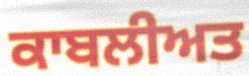
ਕਾਬਲੀਅਤ